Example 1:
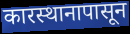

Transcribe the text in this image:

कारस्थानापासून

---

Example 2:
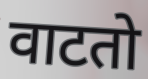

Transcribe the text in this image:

वाटतो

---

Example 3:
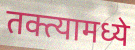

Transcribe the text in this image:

तक्त्यामध्ये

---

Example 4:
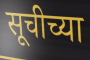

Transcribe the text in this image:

सूचीच्या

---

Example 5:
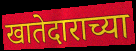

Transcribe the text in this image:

खातेदाराच्या